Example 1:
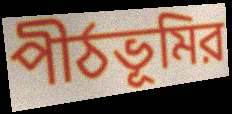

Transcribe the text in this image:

পীঠভূমির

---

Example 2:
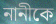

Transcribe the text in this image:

নানীকে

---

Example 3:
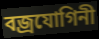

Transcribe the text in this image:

বজ্রযোগিনী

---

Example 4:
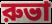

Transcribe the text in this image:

রুভা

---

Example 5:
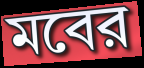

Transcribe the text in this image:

মবের